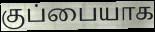
குப்பையாக